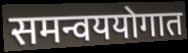
समन्वययोगात